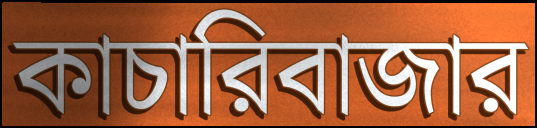
কাচারিবাজার